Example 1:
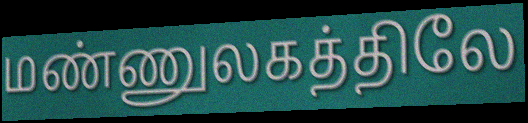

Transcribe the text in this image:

மண்ணுலகத்திலே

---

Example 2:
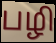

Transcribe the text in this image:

பழி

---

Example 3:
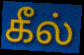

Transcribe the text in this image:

கீல்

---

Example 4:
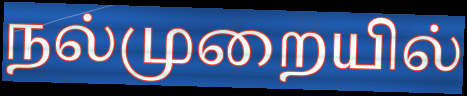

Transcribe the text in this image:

நல்முறையில்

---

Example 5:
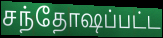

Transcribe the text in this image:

சந்தோஷப்பட்ட